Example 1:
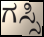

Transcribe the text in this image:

ಗಸ್ಸಿ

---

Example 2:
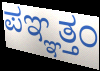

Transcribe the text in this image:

ಪಞ್ಞತ್ತಂ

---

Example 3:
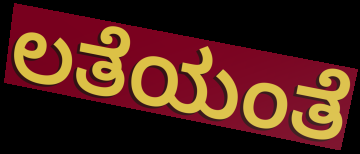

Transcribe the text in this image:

ಲತೆಯಂತೆ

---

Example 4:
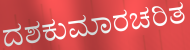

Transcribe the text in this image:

ದಶಕುಮಾರಚರಿತ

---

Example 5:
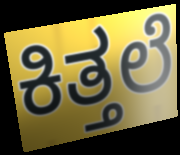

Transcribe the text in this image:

ಕಿತ್ತಲೆ